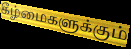
கீழ்மைகளுக்கும்